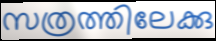
സത്രത്തിലേക്കു